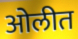
ओलीत